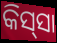
କିସ୍‍ସା